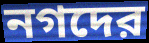
নগদের